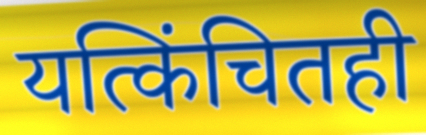
यत्किंचितही